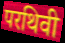
परथिवी